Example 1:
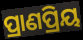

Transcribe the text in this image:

ପ୍ରାଣପ୍ରିୟ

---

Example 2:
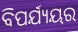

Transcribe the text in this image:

ବିପର୍ଯ୍ୟୟର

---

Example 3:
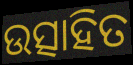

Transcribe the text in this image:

ଉତ୍ସାହିତ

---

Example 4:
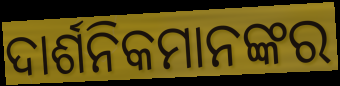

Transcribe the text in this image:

ଦାର୍ଶନିକମାନଙ୍କର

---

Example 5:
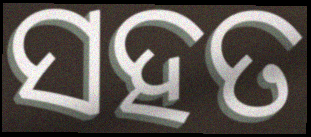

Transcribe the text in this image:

ସହତ